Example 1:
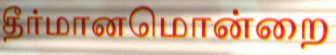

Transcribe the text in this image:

தீர்மானமொன்றை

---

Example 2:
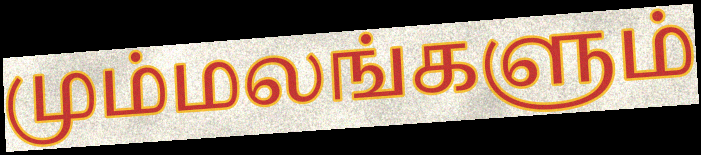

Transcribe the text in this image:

மும்மலங்களும்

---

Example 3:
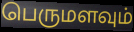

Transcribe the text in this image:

பெருமளவும்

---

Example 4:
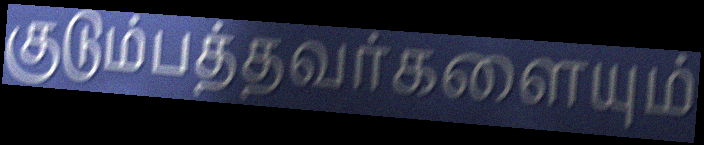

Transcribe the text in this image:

குடும்பத்தவர்களையும்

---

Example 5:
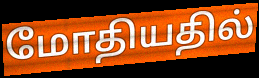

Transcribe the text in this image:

மோதியதில்